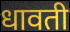
धावती